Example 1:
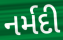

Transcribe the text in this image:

નર્મદી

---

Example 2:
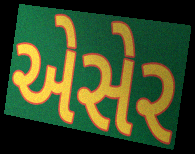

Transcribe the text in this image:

એસેર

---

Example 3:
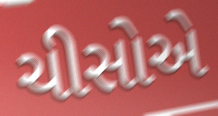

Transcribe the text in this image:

ચીસોએ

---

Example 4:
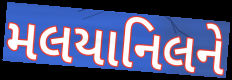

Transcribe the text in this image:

મલયાનિલને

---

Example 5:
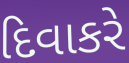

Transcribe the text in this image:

દિવાકરે